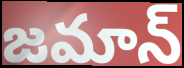
జమాన్